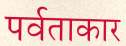
पर्वताकार